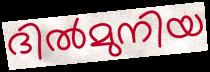
ദിൽമുനിയ